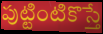
పుట్టింటికొస్తే